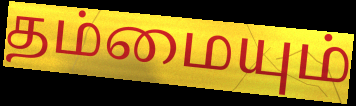
தம்மையும்